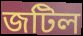
জটিল